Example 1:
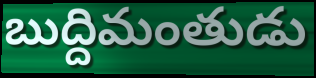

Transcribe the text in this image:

బుద్దిమంతుడు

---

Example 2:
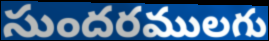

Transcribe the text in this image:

సుందరములగు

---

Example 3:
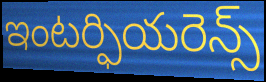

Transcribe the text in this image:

ఇంటర్ఫియరెన్స్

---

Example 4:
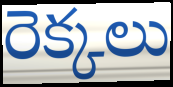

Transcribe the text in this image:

రెక్కలు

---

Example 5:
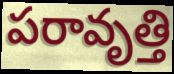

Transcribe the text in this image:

పరావృత్తి